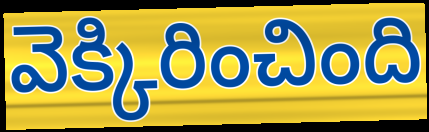
వెక్కిరించింది